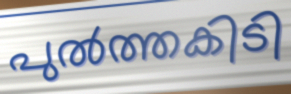
പുൽത്തകിടി